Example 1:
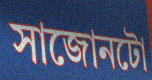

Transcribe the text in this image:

সাজোনটো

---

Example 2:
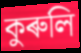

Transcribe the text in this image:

কুৰুলি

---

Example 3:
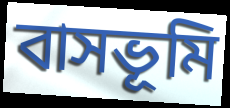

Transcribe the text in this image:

বাসভূমি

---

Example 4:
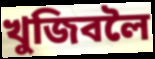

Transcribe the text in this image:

খুজিবলৈ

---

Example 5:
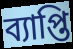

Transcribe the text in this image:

ব্যাপ্তি